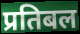
प्रतिबल